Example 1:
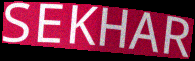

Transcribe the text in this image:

SEKHAR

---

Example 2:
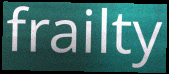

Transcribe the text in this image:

frailty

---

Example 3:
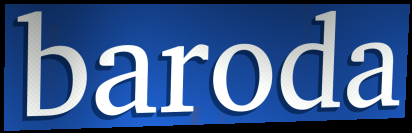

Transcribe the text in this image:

baroda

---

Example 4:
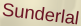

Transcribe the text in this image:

Sunderlal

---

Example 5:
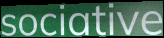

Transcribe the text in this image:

sociative